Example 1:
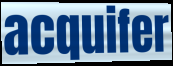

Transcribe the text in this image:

acquifer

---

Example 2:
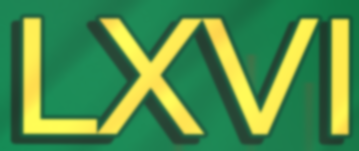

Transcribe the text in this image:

LXVI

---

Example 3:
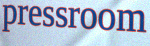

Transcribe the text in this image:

pressroom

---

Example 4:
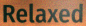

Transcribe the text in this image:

Relaxed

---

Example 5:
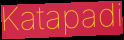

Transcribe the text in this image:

Katapadi